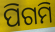
ପିଗମି